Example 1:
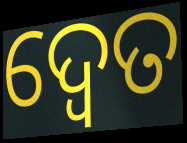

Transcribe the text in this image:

ଦ୍ବେତ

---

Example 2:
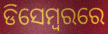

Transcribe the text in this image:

ଡିସେମ୍ବରରେ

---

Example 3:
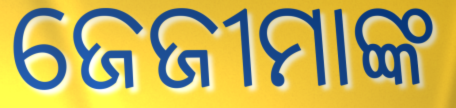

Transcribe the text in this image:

ଜେଜୀମାଙ୍କ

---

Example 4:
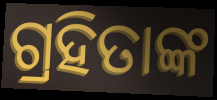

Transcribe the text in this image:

ଗ୍ରହିତାଙ୍କ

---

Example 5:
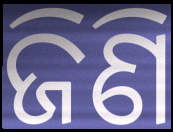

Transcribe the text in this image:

ଜିଣି